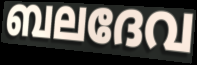
ബലദേവ